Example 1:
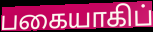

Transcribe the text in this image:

பகையாகிப்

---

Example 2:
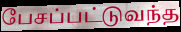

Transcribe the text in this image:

பேசப்பட்டுவந்த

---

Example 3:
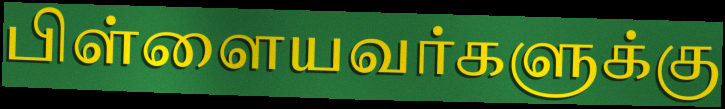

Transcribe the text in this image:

பிள்ளையவர்களுக்கு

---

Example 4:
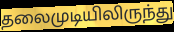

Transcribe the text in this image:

தலைமுடியிலிருந்து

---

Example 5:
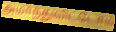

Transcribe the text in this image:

அமர்ந்துவிட்டோம்